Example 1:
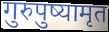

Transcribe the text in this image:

गुरुपुष्यामृत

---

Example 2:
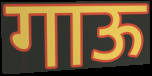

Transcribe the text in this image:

गाऊ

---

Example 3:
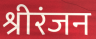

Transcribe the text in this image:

श्रीरंजन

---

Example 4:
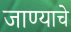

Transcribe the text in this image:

जाण्याचे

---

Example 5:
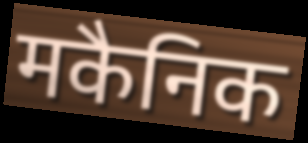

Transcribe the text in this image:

मकैनिक